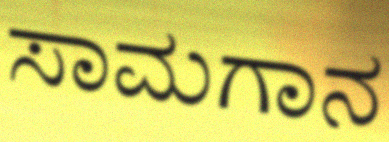
ಸಾಮಗಾನ